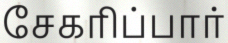
சேகரிப்பார்